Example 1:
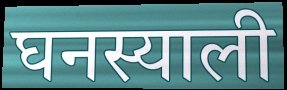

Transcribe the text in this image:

घनस्याली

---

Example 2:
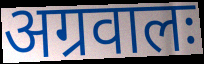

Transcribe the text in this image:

अग्रवालः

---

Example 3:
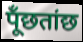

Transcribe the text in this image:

पूँछतांछ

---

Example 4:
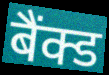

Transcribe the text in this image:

बैंक्ड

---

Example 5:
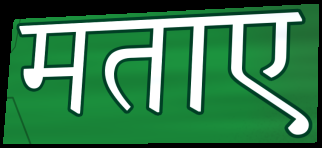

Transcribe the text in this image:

मताए